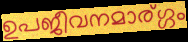
ഉപജീവനമാര്ഗ്ഗം